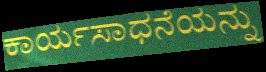
ಕಾರ್ಯಸಾಧನೆಯನ್ನು